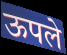
ऊपले